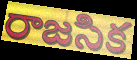
రాజసిక